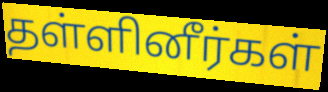
தள்ளினீர்கள்